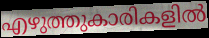
എഴുത്തുകാരികളിൽ